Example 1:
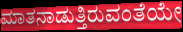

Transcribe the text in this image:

ಮಾತನಾಡುತ್ತಿರುವಂತೆಯೇ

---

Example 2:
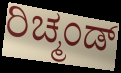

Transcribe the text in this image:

ರಿಚ್ಮಂಡ್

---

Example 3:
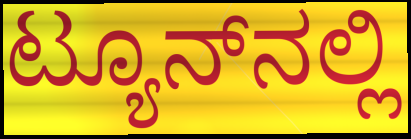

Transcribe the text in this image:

ಟ್ಯೂನ್‌ನಲ್ಲಿ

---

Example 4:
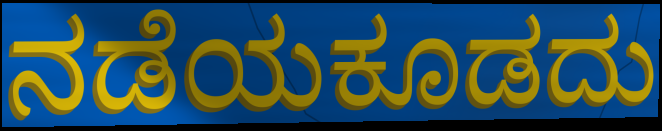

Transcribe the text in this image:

ನಡೆಯಕೂಡದು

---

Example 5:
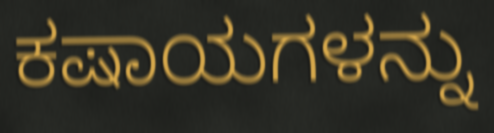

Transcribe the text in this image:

ಕಷಾಯಗಳನ್ನು